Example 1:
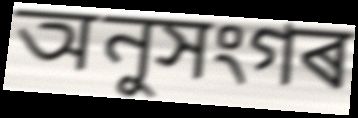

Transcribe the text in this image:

অনুসংগৰ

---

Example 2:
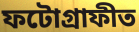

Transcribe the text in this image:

ফটোগ্ৰাফীত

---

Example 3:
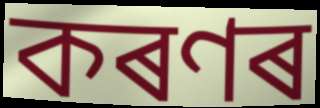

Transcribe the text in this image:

কৰণৰ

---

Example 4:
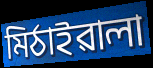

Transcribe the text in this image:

মিঠাইৱালা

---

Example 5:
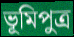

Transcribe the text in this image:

ভূমিপুত্ৰ